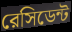
রেসিডেন্ট